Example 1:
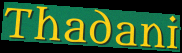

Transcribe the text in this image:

Thadani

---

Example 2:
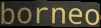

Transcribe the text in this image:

borneo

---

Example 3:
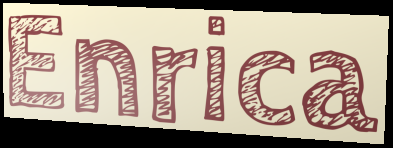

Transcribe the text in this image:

Enrica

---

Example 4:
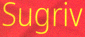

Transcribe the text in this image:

Sugriv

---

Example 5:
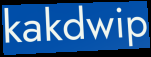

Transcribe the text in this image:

kakdwip